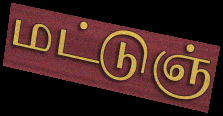
மட்டுஞ்